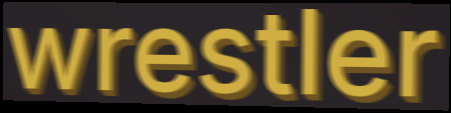
wrestler